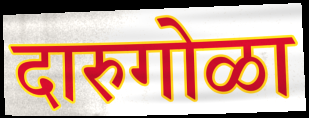
दारुगोळा